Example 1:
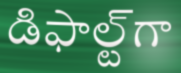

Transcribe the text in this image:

డిఫాల్ట్‌గా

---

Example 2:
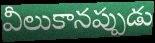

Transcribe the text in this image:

వీలుకానప్పుడు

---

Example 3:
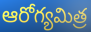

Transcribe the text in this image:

ఆరోగ్యమిత్ర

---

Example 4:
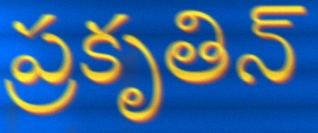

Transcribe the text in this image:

ప్రకృతిన్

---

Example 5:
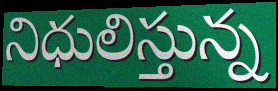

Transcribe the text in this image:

నిధులిస్తున్న